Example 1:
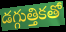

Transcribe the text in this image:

డగ్గుత్తికతో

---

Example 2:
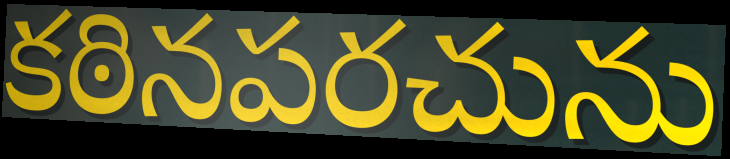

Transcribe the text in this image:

కఠినపరచును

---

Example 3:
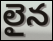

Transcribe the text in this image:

లైన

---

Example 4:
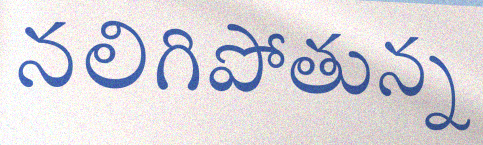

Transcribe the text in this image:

నలిగిపోతున్న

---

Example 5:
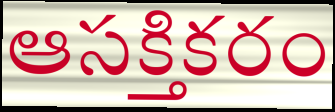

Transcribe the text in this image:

ఆసక్తికరం